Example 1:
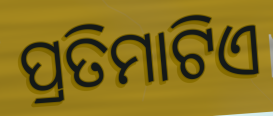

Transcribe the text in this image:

ପ୍ରତିମାଟିଏ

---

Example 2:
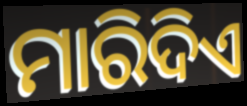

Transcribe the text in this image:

ମାରିଦିଏ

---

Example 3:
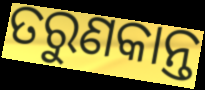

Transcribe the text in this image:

ତରୁଣକାନ୍ତ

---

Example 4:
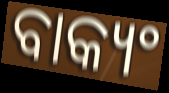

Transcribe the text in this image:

ବାକ୍ୟଂ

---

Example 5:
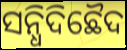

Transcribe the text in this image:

ସନ୍ଧିଦିଛୈଦ